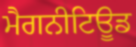
ਮੈਗਨੀਟਿਊਡ